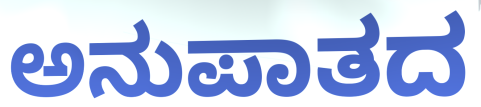
ಅನುಪಾತದ